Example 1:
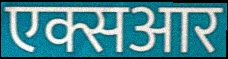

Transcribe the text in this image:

एक्सआर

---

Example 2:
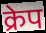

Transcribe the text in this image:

क्रेप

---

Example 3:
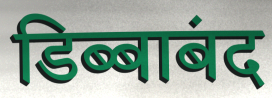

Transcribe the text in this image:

डिब्बाबंद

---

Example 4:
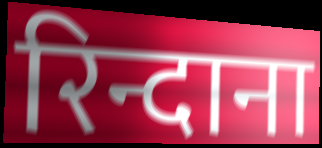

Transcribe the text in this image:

रिन्दाना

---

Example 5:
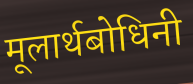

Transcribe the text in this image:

मूलार्थबोधिनी